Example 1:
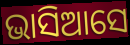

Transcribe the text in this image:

ଭାସିଆସେ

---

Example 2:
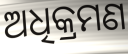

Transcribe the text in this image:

ଅଧିକ୍ରମଣ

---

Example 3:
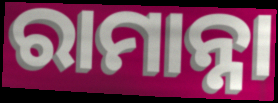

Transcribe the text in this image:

ରାମାନ୍ନା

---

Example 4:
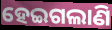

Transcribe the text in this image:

ହେଇଗଲାଣି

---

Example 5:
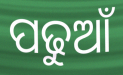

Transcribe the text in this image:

ପଢୁଆଁ